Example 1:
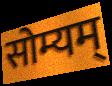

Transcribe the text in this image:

सोम्यम्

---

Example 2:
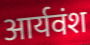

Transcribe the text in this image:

आर्यवंश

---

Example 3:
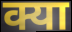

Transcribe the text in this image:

क्या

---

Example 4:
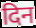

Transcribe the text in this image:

दिन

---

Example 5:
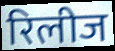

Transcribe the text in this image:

रिलीज